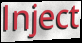
Inject